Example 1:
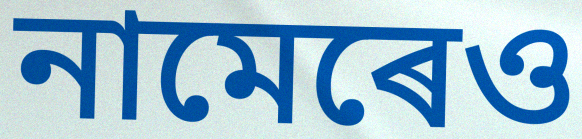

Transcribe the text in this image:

নামেৰেও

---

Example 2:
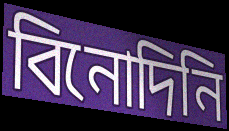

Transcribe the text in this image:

বিনোদিনি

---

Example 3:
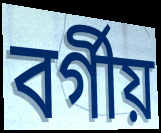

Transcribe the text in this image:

বৰ্গীয়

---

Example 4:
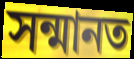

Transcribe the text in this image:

সন্মানত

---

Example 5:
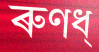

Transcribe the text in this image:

ৰুণধ্